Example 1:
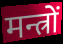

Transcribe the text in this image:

मन्त्रों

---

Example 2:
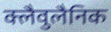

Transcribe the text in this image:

क्लैवुलैनिक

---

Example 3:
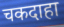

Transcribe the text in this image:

चकदाहा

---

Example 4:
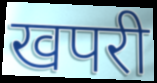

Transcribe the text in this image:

खपरी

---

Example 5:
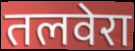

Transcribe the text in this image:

तलवेरा